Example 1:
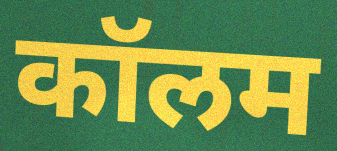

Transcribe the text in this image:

कॉलम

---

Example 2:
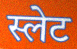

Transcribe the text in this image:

स्लेट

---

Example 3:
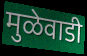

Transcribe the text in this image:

मुळेवाडी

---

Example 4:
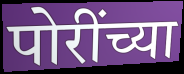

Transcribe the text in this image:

पोरींच्या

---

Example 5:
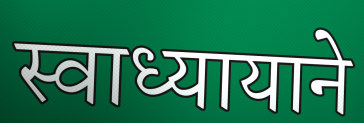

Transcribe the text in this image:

स्वाध्यायाने